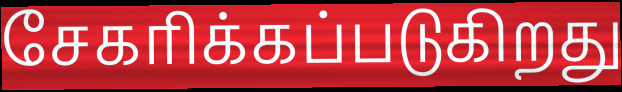
சேகரிக்கப்படுகிறது